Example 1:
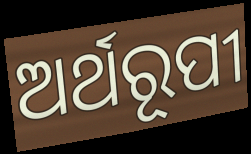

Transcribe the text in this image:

ଅର୍ଥରୂପୀ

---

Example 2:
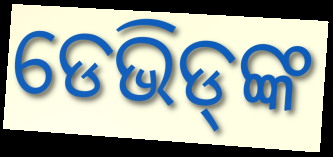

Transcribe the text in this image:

ଡେଭିଡ୍‌ଙ୍କ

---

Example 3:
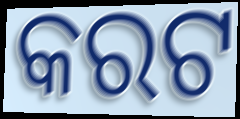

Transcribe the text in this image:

କରଟ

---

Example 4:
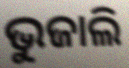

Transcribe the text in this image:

ଭୁଜାଲି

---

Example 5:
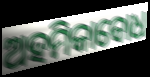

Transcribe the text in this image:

ଅହମିକାବୋଧ